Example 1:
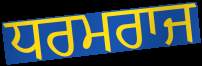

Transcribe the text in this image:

ਧਰਮਰਾਜ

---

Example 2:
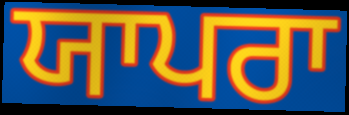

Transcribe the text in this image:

ਯਾਪਰਾ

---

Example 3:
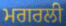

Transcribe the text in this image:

ਮਗਰਲੀ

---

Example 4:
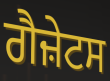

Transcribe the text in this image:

ਗੈਜ਼ੇਟਸ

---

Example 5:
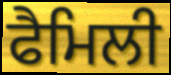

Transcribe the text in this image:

ਫੈਮਿਲੀ